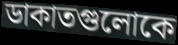
ডাকাতগুলোকে